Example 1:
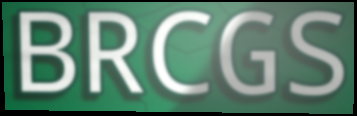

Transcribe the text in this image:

BRCGS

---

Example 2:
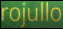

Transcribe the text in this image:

rojullo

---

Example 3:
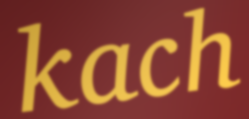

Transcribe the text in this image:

kach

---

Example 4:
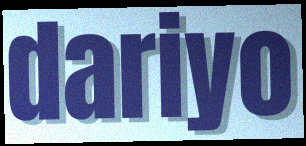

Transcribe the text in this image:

dariyo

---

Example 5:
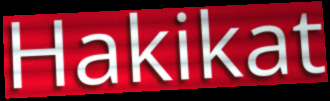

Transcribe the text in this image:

Hakikat